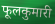
फूलकुमारी